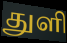
துளி